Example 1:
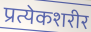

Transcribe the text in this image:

प्रत्येकशरीर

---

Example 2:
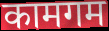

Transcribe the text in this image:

कामगम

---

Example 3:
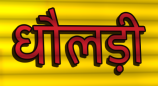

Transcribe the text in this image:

धौलड़ी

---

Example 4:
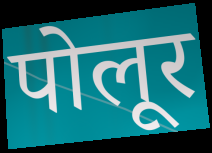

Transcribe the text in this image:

पोलूर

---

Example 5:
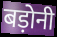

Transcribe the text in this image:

बड़ोनी